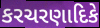
કરચરણાદિકે